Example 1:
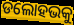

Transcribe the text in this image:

ଡଲୋହଭକୁ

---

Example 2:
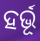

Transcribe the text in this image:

ହର୍ଭୂ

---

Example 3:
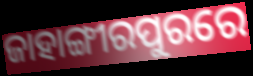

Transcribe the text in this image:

ଜାହାଙ୍ଗୀରପୁରରେ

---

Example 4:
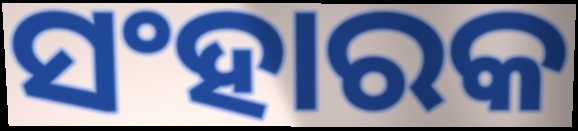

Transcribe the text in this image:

ସଂହାରକ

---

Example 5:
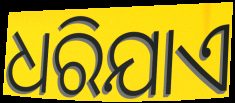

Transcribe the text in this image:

ଧରିଯାଏ